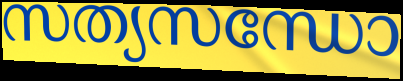
സത്യസന്ധോ